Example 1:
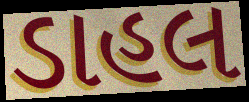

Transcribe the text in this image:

ડાહલ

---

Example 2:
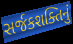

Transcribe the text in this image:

સર્જકશક્તિનું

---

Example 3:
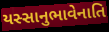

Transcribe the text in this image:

યસ્સાનુભાવેનાતિ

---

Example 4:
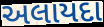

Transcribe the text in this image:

અલાયદા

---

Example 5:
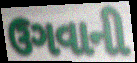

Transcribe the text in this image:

ઉગવાની